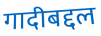
गादीबद्दल